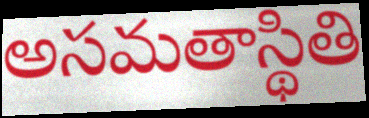
అసమతాస్థితి